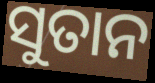
ସୁତାନ